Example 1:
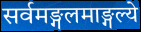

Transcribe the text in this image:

सर्वमङ्गलमाङ्गल्ये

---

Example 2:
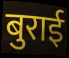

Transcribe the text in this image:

बुराई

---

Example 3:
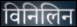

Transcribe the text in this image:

विनिलिन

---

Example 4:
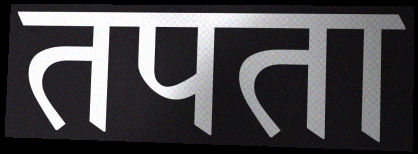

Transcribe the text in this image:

तपता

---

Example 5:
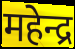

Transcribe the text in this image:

महेन्‍द्र